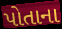
પોતાના